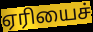
ஏரியைச்